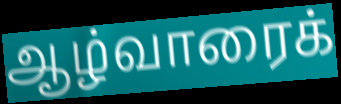
ஆழ்வாரைக்